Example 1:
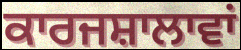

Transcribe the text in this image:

ਕਾਰਜਸ਼ਾਲਾਵਾਂ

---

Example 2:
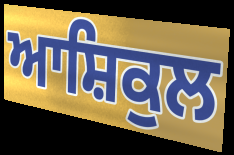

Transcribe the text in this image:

ਆਸ਼ਿਕੁਲ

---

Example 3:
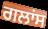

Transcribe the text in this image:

ਗਲਾਂਸ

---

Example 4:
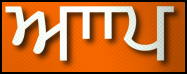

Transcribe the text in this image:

ਆਾਪ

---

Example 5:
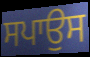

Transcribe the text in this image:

ਸਪਾਉਸ